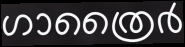
ഗാത്രൈർ